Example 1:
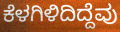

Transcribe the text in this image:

ಕೆಳಗಿಳಿದಿದ್ದೆವು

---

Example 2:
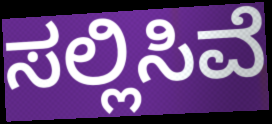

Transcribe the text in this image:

ಸಲ್ಲಿಸಿವೆ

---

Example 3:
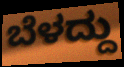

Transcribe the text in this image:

ಬೆಳದ್ದು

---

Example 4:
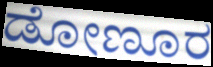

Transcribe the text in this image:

ಡೋಣೂರ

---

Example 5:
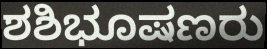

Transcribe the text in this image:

ಶಶಿಭೂಷಣರು